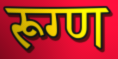
रूग्ण